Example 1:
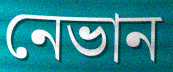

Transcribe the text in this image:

নেভান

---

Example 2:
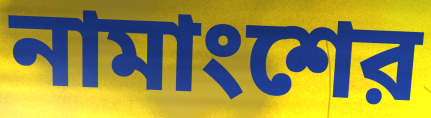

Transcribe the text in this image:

নামাংশের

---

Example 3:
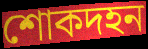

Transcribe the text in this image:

শোকদহন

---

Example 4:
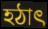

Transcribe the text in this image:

হঠাৎ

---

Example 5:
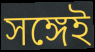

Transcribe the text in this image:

সঙ্গেই